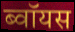
ब्वॉयस